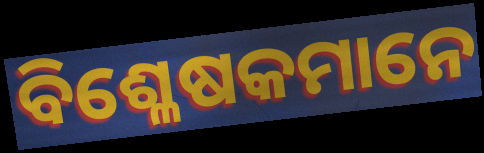
ବିଶ୍ଳେଷକମାନେ